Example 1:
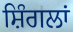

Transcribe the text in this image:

ਸ਼ਿੰਗਲਾਂ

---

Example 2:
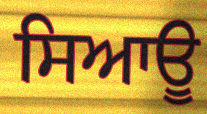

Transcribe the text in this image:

ਸਿਆਊ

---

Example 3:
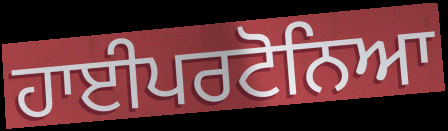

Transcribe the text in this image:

ਹਾਈਪਰਟੋਨਿਆ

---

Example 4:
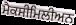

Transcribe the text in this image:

ਮੈਕਸੀਮਿਲੀਅਨ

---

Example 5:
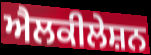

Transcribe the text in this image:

ਐਲਕੀਲੇਸ਼ਨ